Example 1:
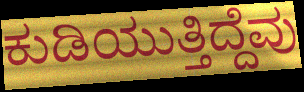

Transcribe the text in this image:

ಕುಡಿಯುತ್ತಿದ್ದೆವು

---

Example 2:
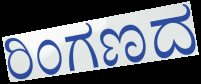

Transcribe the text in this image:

ರಿಂಗಣದ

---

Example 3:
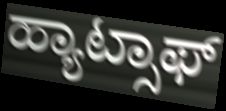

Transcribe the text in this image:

ಹ್ಯಾಟ್ಸಾಫ್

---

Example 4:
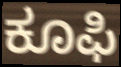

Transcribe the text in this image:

ಕೂಫಿ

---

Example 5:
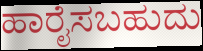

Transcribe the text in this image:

ಹಾರೈಸಬಹುದು